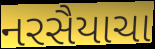
નરસૈયાચા